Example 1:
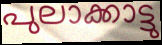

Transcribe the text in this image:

പുലാക്കാട്ടു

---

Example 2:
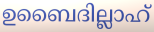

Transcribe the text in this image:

ഉബൈദില്ലാഹ്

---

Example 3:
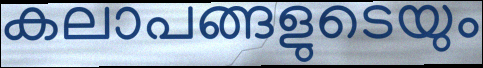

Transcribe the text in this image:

കലാപങ്ങളുടെയും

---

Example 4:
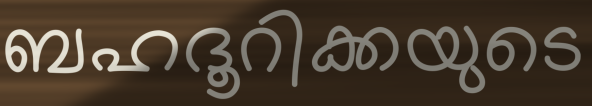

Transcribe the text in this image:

ബഹദൂറിക്കയുടെ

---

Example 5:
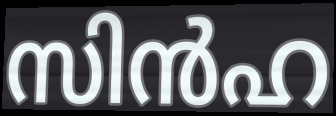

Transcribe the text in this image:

സിൻഹ